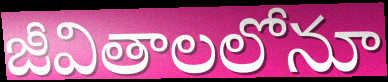
జీవితాలలోనూ